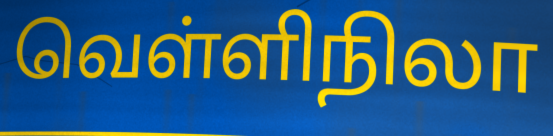
வெள்ளிநிலா